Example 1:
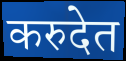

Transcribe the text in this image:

करुदेत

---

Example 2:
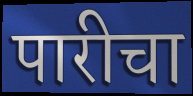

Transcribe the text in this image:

पारीचा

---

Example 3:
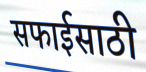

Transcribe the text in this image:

सफाईसाठी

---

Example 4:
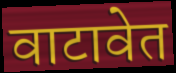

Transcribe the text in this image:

वाटावेत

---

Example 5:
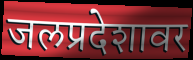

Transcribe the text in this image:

जलप्रदेशावर